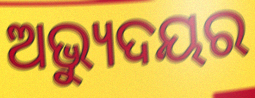
ଅଭ୍ୟୁଦୟର